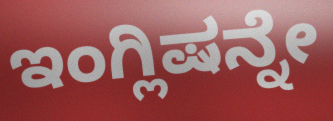
ಇಂಗ್ಲಿಷನ್ನೇ